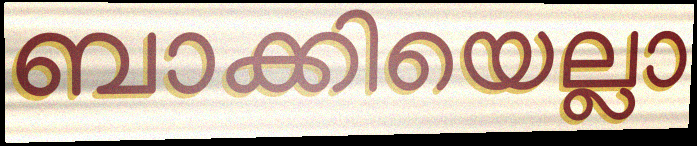
ബാക്കിയെല്ലാ